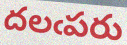
దలఁపరు